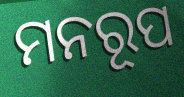
ମନରୂପ